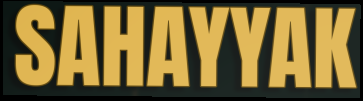
SAHAYYAK